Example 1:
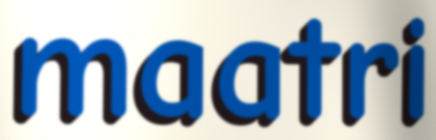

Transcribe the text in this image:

maatri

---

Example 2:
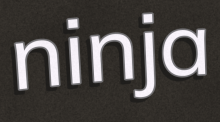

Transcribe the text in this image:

ninja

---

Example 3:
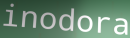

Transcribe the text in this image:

inodora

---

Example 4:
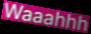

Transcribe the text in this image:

Waaahhh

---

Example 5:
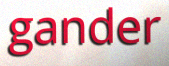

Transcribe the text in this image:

gander